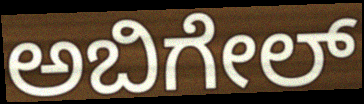
ಅಬಿಗೇಲ್